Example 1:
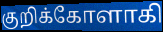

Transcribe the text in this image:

குறிக்கோளாகி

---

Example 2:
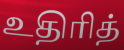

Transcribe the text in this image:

உதிரித்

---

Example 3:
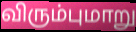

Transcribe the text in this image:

விரும்புமாறு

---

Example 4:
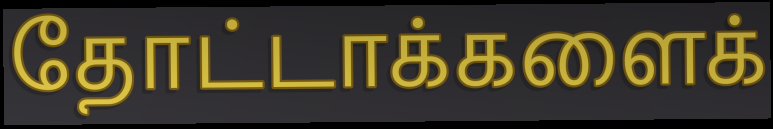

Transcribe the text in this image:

தோட்டாக்களைக்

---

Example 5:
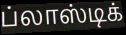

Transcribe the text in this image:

ப்லாஸ்டிக்